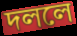
দললে